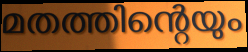
മതത്തിന്റെയും